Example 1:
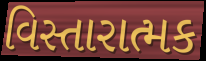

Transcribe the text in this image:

વિસ્તારાત્મક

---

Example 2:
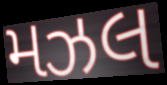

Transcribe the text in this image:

મઝલ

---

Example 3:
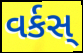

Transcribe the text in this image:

વર્કસ્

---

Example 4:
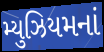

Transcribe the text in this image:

મ્યુઝિયમનાં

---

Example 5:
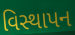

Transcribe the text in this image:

વિસ્થાપન